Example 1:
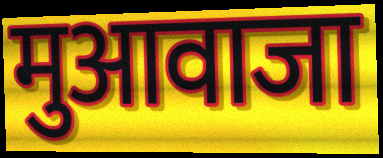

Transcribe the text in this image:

मुआवाजा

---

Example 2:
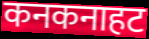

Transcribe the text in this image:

कनकनाहट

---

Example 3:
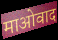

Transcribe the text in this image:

माओवाद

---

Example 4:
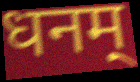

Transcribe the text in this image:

धनम्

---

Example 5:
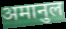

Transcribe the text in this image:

अमानुल